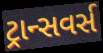
ટ્રાન્સવર્સ